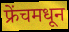
फ्रेंचमधून